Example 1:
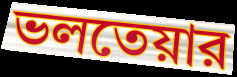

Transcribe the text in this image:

ভলতেয়ার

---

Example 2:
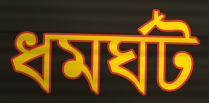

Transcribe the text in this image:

ধমর্ঘট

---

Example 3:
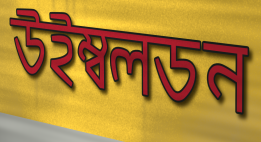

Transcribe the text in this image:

উইম্বলডন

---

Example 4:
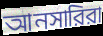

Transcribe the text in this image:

আনসারিরা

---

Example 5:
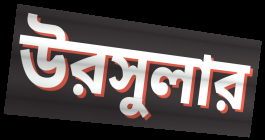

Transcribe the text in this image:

উরসুলার